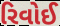
રિવોઈ